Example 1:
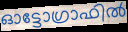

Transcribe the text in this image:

ഓട്ടോഗ്രാഫിൽ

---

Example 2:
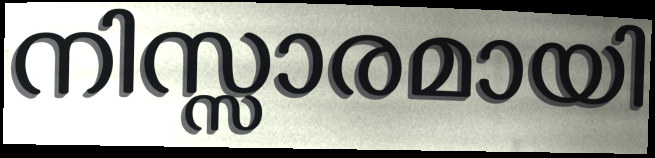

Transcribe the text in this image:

നിസ്സാരമായി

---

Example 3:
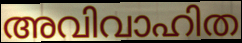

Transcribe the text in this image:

അവിവാഹിത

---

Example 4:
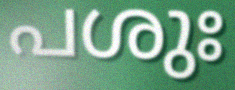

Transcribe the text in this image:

പശുഃ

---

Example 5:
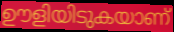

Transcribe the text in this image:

ഊളിയിടുകയാണ്